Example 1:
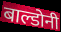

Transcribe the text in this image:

बाल्डोनी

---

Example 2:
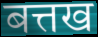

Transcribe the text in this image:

बत्तख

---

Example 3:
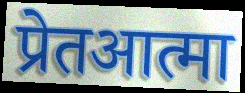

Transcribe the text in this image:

प्रेतआत्मा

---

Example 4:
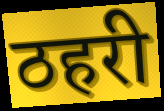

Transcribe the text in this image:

ठहरी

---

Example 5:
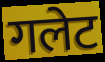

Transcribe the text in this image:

गलेट